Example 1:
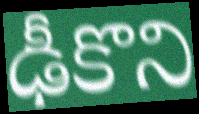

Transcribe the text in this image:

ఢీకొని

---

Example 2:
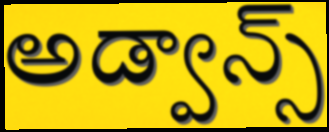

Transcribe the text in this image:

అడ్వాన్స్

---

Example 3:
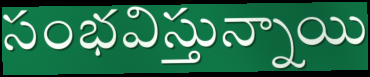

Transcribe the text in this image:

సంభవిస్తున్నాయి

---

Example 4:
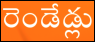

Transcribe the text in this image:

రెండేడ్లు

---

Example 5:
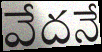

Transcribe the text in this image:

వేదనే